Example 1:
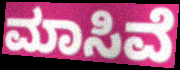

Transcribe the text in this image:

ಮಾಸಿವೆ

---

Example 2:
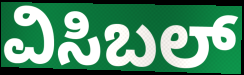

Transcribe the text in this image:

ವಿಸಿಬಲ್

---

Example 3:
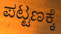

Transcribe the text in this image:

ಪಟ್ಟಣಕ್ಕೆ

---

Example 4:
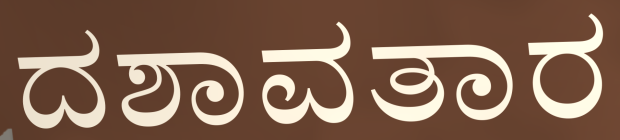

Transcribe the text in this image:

ದಶಾವತಾರ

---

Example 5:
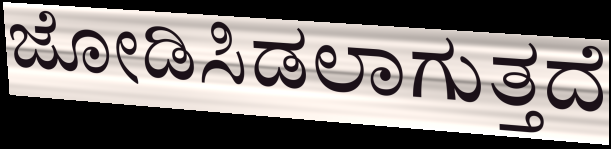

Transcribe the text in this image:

ಜೋಡಿಸಿಡಲಾಗುತ್ತದೆ